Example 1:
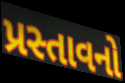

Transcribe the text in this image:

પ્રસ્તાવનો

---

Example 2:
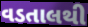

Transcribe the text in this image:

વડતાલથી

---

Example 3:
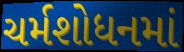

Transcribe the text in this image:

ચર્મશોધનમાં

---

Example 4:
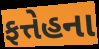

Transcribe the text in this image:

ફત્તેહના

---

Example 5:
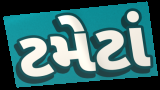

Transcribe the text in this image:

ટમેટાં